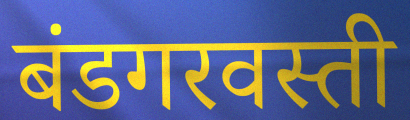
बंडगरवस्ती